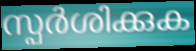
സ്പർശിക്കുക